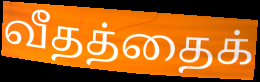
வீதத்தைக்